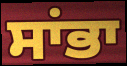
ਸਾਂਭਾ